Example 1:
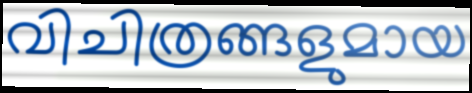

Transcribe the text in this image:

വിചിത്രങ്ങളുമായ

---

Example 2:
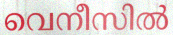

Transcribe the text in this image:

വെനീസിൽ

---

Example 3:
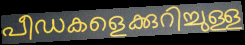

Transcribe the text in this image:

പീഡകളെക്കുറിച്ചുള്ള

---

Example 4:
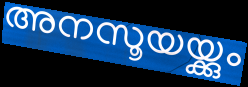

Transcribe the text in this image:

അനസൂയയ്ക്കും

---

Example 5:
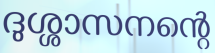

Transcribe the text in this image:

ദുശ്ശാസനന്റെ